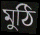
মুঠি